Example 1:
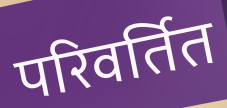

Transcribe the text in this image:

परिवर्तित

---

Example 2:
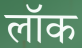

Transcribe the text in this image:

लॉक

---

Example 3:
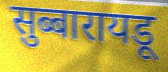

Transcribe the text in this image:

सुब्बारायडू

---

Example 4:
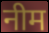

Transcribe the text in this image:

नीम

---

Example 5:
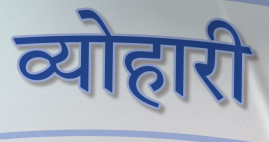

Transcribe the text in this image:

व्योहारी